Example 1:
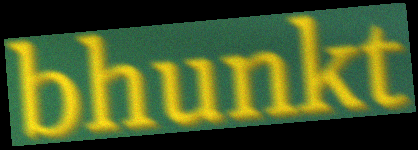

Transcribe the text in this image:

bhunkt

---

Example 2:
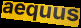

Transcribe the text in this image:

aequus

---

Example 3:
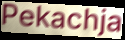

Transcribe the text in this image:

Pekachja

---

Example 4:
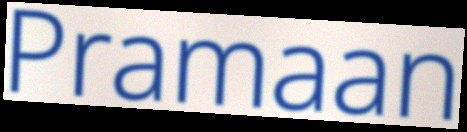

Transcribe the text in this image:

Pramaan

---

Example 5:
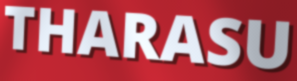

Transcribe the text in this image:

THARASU